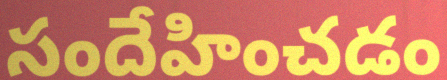
సందేహించడం